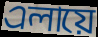
এলায়ে